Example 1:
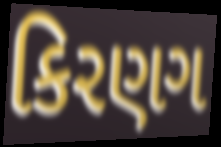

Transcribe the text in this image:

કિરણગ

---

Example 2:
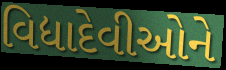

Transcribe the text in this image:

વિદ્યાદેવીઓને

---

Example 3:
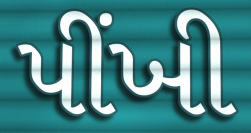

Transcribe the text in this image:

પીંખી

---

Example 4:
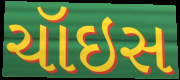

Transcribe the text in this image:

ચૉઇસ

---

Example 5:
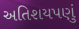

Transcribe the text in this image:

અતિશયપણું